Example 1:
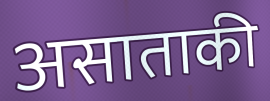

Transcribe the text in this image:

असाताकी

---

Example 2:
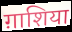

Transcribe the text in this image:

ग़ाशिया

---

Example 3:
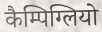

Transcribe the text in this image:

कैम्पिग्लियो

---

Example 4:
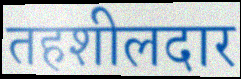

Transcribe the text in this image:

तहशीलदार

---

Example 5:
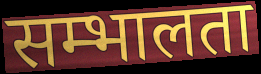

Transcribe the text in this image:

सम्भालता